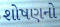
શોષણનો